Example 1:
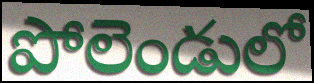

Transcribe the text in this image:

పోలెండులో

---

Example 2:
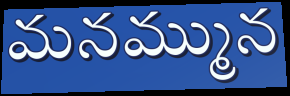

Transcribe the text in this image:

మనమ్మున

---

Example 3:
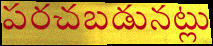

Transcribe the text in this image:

పరచబడునట్లు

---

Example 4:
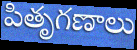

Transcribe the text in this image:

పితృగణాలు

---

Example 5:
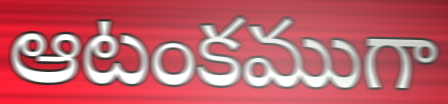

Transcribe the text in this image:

ఆటంకముగా